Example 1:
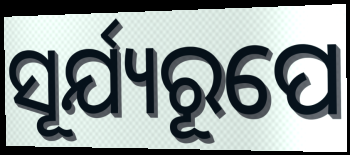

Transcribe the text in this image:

ସୂର୍ଯ୍ୟରୂପେ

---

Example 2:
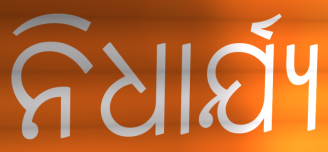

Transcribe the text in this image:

ନିଧାର୍ଯ୍ୟ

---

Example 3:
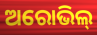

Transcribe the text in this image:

ଅରୋଭିଲ୍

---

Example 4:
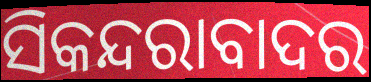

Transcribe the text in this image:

ସିକନ୍ଦରାବାଦର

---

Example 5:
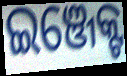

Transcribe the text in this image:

ଇଞ୍ଜେକ୍ଟ